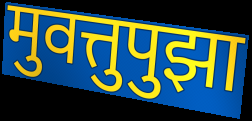
मुवत्तुपुझा